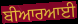
ਬੀਆਰਆਈ